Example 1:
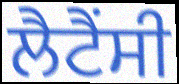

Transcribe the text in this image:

ਲੈਟੈਂਸੀ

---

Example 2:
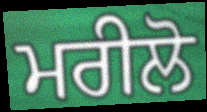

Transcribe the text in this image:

ਮਰੀਲੋ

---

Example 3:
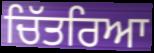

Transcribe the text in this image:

ਚਿੱਤਰਿਆ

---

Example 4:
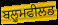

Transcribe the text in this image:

ਬਲੂਮਫੀਲਡ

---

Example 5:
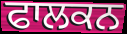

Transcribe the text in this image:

ਫਾਲਕਨ